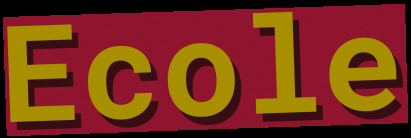
Ecole